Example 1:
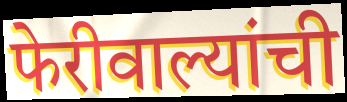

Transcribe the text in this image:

फेरीवाल्यांची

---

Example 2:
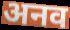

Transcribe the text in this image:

अनव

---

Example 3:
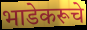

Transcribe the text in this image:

भाडेकरूचे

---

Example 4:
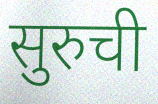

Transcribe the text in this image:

सुरुची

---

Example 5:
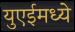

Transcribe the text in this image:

युएईमध्ये